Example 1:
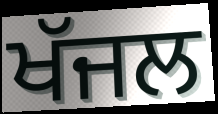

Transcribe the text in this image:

ਖੱਜਲ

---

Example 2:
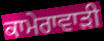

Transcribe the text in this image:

ਕਾਮੇਰਾਵਾੜੀ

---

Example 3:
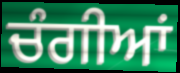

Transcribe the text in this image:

ਚੰਗੀਆਂ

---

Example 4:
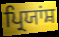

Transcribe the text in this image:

ਪ੍ਰਿਯਾਂਸ਼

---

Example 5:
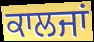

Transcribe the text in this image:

ਕਾਲਜਾਂ